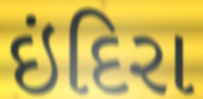
ઇંદિરા